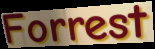
Forrest